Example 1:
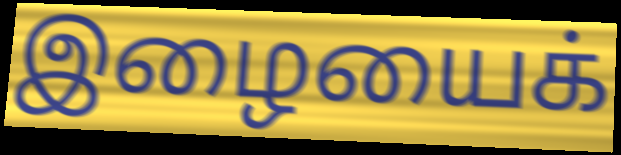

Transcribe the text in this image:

இழையைக்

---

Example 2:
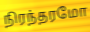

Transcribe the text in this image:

நிரந்தரமோ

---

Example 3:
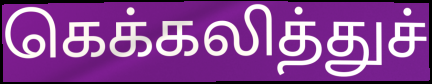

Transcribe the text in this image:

கெக்கலித்துச்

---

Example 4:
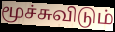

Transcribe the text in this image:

மூச்சுவிடும்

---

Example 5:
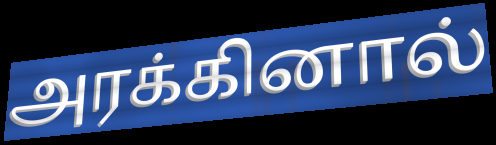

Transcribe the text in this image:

அரக்கினால்